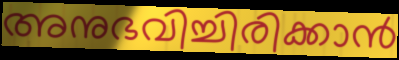
അനുഭവിച്ചിരിക്കാൻ